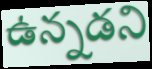
ఉన్నడని